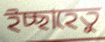
ইচ্ছাহেতু